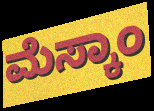
ಮೆಸ್ಕಾಂ